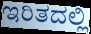
ಇರಿತದಲ್ಲಿ